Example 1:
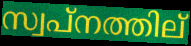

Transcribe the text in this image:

സ്വപ്നത്തില്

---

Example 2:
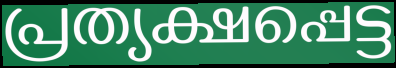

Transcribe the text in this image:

പ്രത്യക്ഷപ്പെട്ട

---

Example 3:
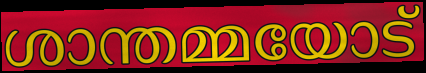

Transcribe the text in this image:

ശാന്തമ്മയോട്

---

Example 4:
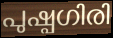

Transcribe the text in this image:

പുഷ്പഗിരി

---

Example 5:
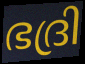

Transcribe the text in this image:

ഭദ്രി